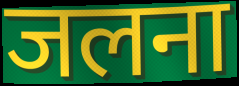
जलना